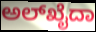
ಅಲ್‌ಖೈದಾ